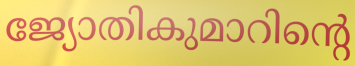
ജ്യോതികുമാറിന്റെ